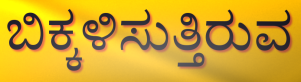
ಬಿಕ್ಕಳಿಸುತ್ತಿರುವ